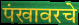
पंखावरचे